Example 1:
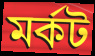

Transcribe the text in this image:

মর্কট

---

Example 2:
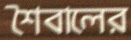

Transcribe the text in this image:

শৈবালের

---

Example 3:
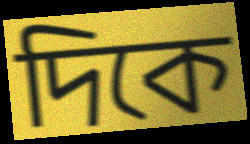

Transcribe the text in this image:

দিকে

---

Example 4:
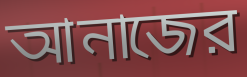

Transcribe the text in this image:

আনাজের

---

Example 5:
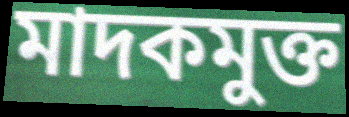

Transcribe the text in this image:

মাদকমুক্ত